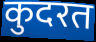
कुदरत